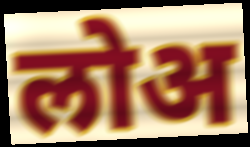
लोअ